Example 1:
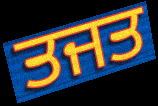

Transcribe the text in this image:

ਤਜਤ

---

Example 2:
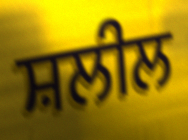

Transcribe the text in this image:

ਸ਼ਲੀਲ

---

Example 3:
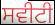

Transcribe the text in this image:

ਸਵੀਟੀ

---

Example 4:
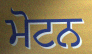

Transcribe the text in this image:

ਮੋਟਨ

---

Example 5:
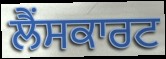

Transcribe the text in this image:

ਲੈਂਸਕਾਰਟ